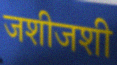
जशीजशी